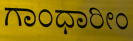
ಗಾಂಧಾರೀಂ